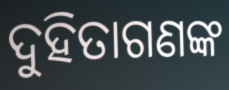
ଦୁହିତାଗଣଙ୍କ